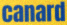
canard